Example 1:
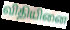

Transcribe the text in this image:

விதியினை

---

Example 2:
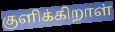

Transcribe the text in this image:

குளிக்கிறாள்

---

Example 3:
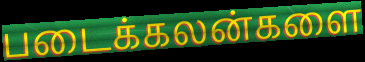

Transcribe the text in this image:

படைக்கலன்களை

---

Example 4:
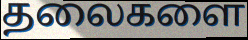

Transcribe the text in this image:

தலைகளை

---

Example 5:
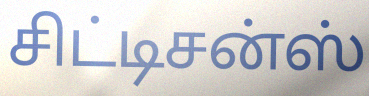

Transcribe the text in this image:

சிட்டிசன்ஸ்